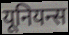
यूनियन्स